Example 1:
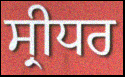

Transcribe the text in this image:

ਸ੍ਰੀਧਰ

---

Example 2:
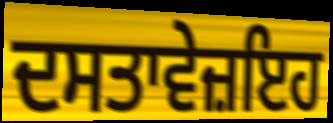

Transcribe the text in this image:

ਦਸਤਾਵੇਜ਼ਇਹ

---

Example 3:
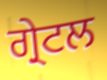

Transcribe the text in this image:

ਗ੍ਰੇਟਲ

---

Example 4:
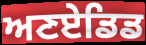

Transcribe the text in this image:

ਅਣਏਡਿਡ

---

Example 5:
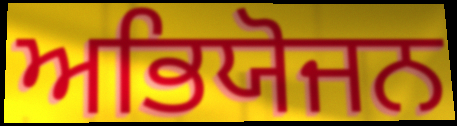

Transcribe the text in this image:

ਅਭਿਯੋਜਨ